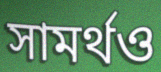
সামর্থও